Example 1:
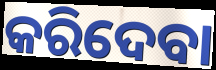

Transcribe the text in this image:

କରିଦେବା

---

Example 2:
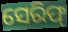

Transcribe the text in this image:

ସେରିଫ୍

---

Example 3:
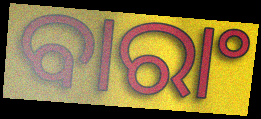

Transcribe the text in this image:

ବାରାଂ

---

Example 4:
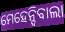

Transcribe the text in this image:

ମେହେନ୍ଦିବାଲା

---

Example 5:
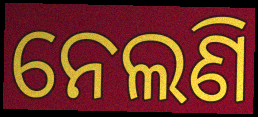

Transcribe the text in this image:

ନେଲଣି